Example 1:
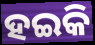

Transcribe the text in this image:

ହଇକି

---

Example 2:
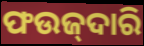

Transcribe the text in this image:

ଫଉଜ୍‌ଦାରି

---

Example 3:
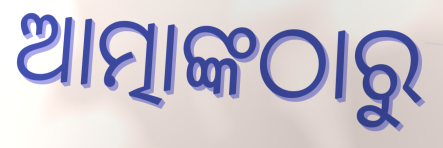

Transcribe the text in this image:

ଆତ୍ମାଙ୍କଠାରୁ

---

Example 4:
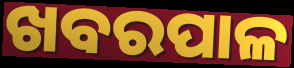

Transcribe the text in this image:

ଖବରପାଳ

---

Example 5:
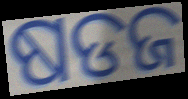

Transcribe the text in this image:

ଷଡଜ